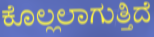
ಕೊಲ್ಲಲಾಗುತ್ತಿದೆ